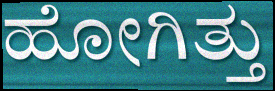
ಹೋಗಿತ್ತು